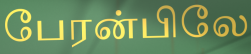
பேரன்பிலே